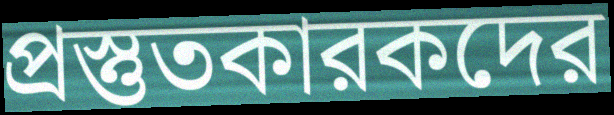
প্রস্তুতকারকদের